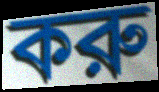
করু